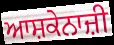
ਆਸ਼ਕੇਨਾਜ਼ੀ